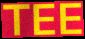
TEE